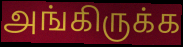
அங்கிருக்க